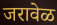
जरावेळ